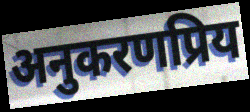
अनुकरणप्रिय